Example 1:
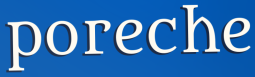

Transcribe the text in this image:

poreche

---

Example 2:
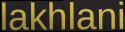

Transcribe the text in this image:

lakhlani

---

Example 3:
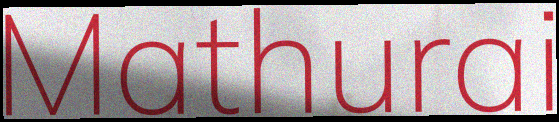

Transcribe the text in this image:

Mathurai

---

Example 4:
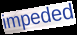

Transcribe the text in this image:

impeded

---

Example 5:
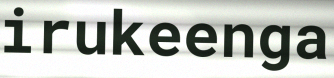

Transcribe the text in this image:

irukeenga